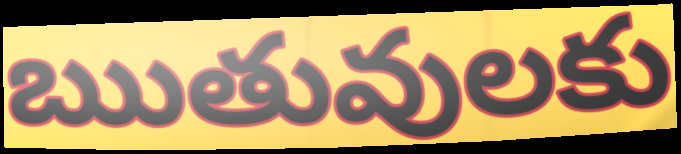
ఋతువులకు